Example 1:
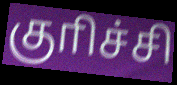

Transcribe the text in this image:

குரிச்சி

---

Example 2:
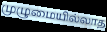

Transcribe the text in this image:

முழுமையில்லாத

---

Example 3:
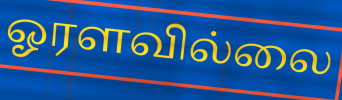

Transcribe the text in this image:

ஓரளவில்லை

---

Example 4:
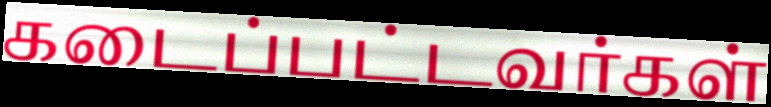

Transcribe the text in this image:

கடைப்பட்டவர்கள்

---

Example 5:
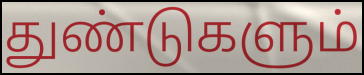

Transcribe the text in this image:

துண்டுகளும்